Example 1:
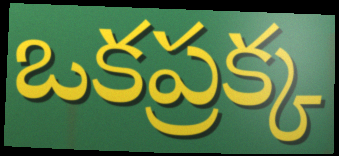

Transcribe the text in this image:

ఒకప్రక్క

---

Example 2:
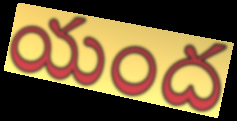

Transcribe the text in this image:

యంద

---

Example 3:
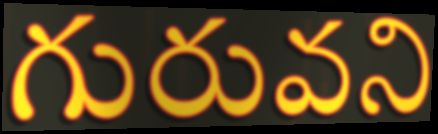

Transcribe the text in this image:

గురువని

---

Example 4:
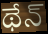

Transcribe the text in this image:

థేన్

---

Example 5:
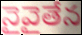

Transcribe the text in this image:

నైవైతేన